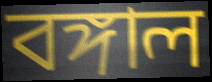
বঙ্গাল